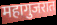
महागुजरात